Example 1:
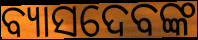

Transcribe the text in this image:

ବ୍ୟାସଦେବଙ୍କ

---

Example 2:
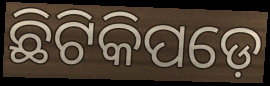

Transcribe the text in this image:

ଛିଟିକିପଡ଼େ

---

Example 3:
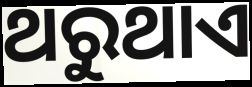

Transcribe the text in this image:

ଥରୁଥାଏ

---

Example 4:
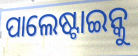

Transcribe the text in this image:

ପାଲେଷ୍ଟାଇନ୍କୁ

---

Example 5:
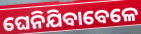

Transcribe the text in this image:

ଘେନିଯିବାବେଳେ